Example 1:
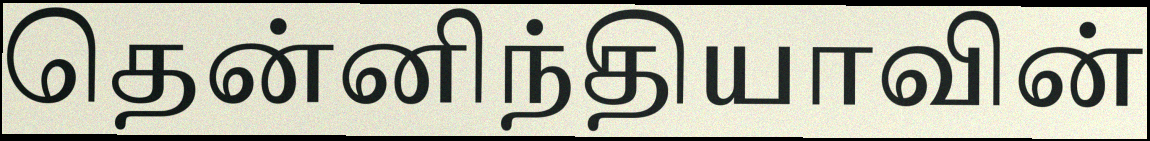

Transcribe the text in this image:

தென்னிந்தியாவின்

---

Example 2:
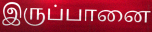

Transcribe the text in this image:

இருப்பானை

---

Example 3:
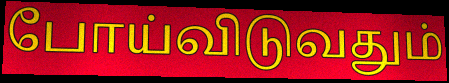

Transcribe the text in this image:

போய்விடுவதும்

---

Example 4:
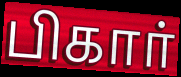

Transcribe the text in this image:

பிகார்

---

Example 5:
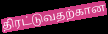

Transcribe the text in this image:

திரட்டுவதற்கான